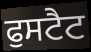
ਫੁਸਟੈਟ